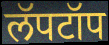
लॅपटॉप